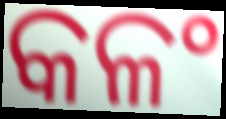
କଳଂ